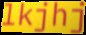
lkjhj